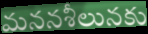
మననశీలునకు